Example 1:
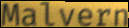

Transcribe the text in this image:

Malvern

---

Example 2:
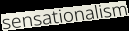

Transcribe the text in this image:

sensationalism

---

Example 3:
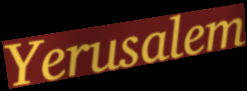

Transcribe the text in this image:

Yerusalem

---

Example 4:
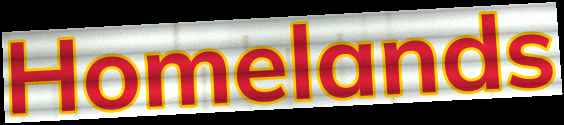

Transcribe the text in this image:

Homelands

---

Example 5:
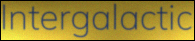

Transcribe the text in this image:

Intergalactic